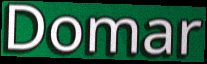
Domar